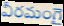
వీరమంగై